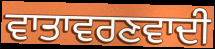
ਵਾਤਾਵਰਣਵਾਦੀ